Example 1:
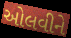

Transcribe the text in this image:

ઓલવીને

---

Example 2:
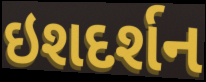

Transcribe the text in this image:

ઇશદર્શન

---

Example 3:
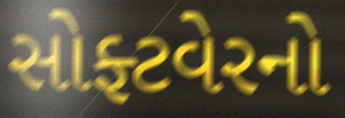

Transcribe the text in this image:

સોફ્ટવેરનો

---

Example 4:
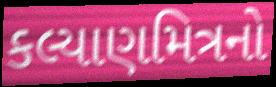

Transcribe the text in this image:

કલ્યાણમિત્રનો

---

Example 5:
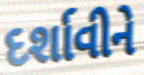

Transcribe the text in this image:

દર્શાવીને